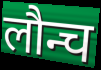
लौन्च